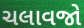
ચલાવજો